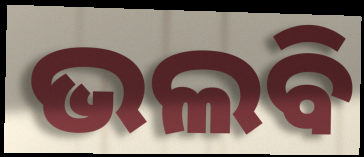
ଭଲବି